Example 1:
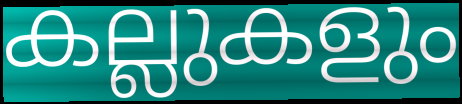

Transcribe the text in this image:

കല്ലുകളും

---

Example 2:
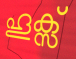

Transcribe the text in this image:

ഹൂക്സ്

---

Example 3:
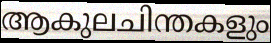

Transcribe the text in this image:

ആകുലചിന്തകളും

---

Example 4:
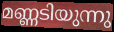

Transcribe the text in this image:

മണ്ണടിയുന്നു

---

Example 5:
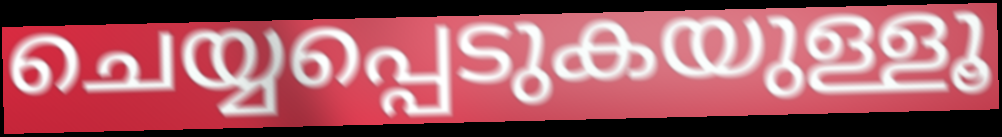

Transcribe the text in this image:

ചെയ്യപ്പെടുകയുള്ളൂ